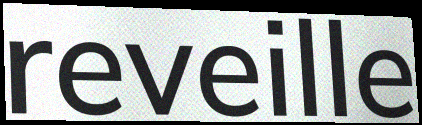
reveille